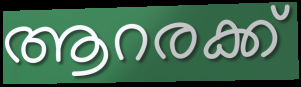
ആറരക്ക്